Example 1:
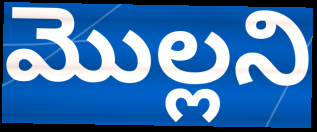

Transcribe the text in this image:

మొల్లని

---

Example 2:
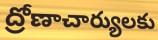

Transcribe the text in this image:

ద్రోణాచార్యులకు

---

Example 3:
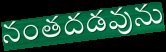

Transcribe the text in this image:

నంతదడవును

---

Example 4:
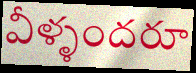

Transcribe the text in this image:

వీళ్ళందరూ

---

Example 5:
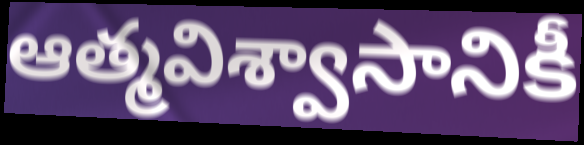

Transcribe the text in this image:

ఆత్మవిశ్వాసానికీ